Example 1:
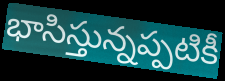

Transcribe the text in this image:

భాసిస్తున్నప్పటికీ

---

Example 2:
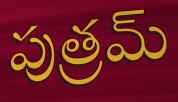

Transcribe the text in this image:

పుత్రమ్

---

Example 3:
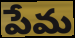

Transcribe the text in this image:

పేమ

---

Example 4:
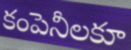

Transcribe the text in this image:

కంపెనీలకూ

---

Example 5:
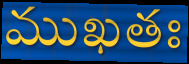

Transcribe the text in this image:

ముఖతః